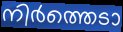
നിർത്തെടാ